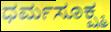
ಧರ್ಮಸೂಕ್ಷ್ಮ